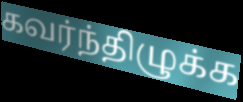
கவர்ந்திழுக்க